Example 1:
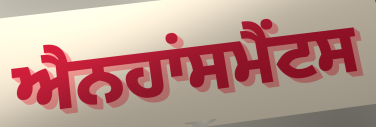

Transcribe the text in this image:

ਐਨਹਾਂਸਮੈਂਟਸ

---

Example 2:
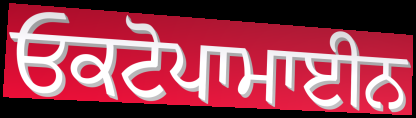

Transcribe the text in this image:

ਓਕਟੋਪਾਮਾਈਨ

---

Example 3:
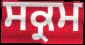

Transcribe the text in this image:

ਸਕ੍ਰਮ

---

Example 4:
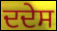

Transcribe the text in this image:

ਦਦੇਸ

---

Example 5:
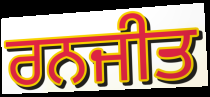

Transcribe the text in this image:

ਰਨਜੀਤ